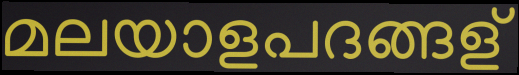
മലയാളപദങ്ങള്